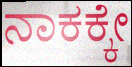
ನಾಕಕ್ಕೇ